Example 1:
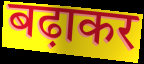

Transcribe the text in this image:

बढ़ाकर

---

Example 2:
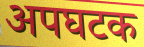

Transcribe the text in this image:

अपघटक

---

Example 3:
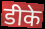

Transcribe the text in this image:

डीके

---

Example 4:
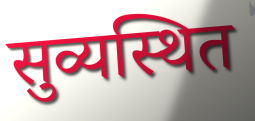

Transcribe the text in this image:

सुव्यस्थित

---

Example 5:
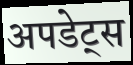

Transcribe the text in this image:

अपडेट्स